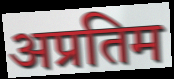
अप्रतिम